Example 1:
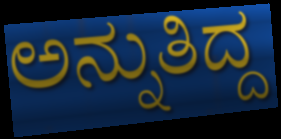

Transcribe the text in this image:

ಅನ್ನುತಿದ್ದ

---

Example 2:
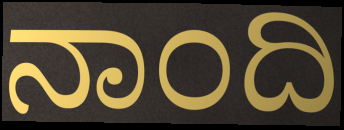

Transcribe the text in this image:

ನಾಂದಿ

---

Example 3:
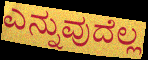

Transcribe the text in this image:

ಎನ್ನುವುದೆಲ್ಲ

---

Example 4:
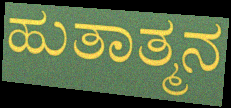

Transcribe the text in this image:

ಹುತಾತ್ಮನ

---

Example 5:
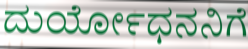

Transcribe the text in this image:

ದುರ್ಯೋಧನನಿಗೆ